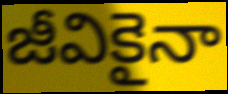
జీవికైనా